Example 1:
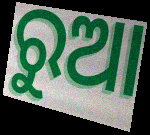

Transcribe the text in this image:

ରୁଆ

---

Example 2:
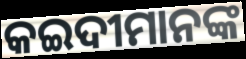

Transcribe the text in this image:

କଇଦୀମାନଙ୍କ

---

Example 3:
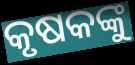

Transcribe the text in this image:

କୃଷକଙ୍କୁ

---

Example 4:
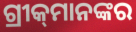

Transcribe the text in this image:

ଗ୍ରୀକ୍‌ମାନଙ୍କର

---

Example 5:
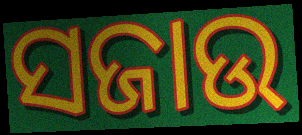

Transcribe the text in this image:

ସଜାଉ